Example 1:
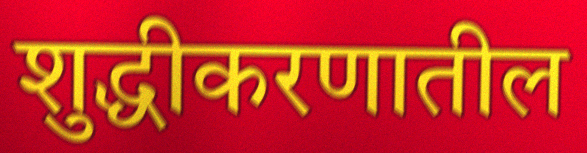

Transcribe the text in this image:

शुद्धीकरणातील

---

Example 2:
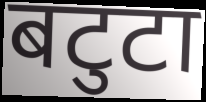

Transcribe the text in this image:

बटुटा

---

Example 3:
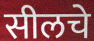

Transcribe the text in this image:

सीलचे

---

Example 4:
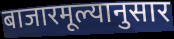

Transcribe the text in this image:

बाजारमूल्यानुसार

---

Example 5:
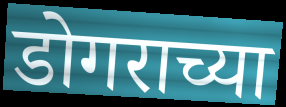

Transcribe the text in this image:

डोगराच्या